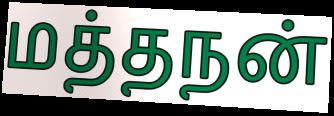
மத்தநன்